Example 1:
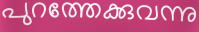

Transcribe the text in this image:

പുറത്തേക്കുവന്നു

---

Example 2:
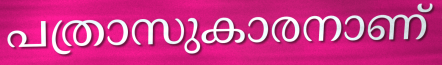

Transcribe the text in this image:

പത്രാസുകാരനാണ്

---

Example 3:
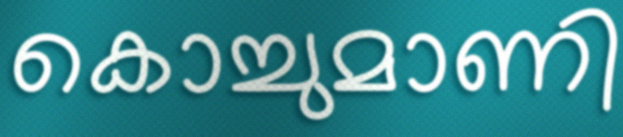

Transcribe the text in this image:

കൊച്ചുമാണി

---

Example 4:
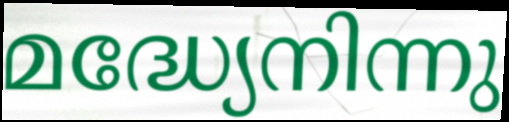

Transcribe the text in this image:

മദ്ധ്യേനിന്നു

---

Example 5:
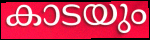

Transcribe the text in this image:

കാടയും